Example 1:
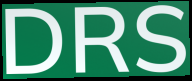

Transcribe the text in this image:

DRS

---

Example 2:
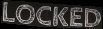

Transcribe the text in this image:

LOCKED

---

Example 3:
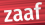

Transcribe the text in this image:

zaaf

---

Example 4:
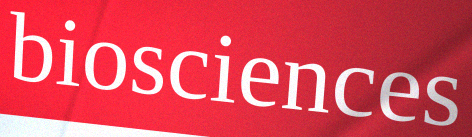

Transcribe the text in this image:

biosciences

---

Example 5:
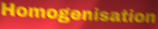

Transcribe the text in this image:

Homogenisation